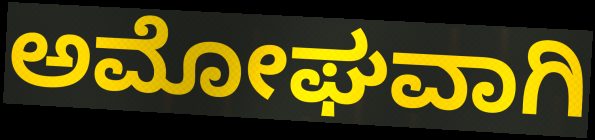
ಅಮೋಘವಾಗಿ